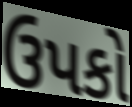
ઉપકો